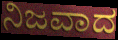
ನಿಜವಾದ